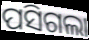
ପସିଗଲା